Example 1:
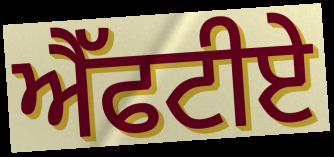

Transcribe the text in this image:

ਐੱਫਟੀਏ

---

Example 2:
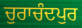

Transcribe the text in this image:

ਚੁਰਾਚੰਦਪੁਰ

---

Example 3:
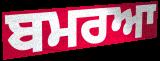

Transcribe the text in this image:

ਬਮਰਆ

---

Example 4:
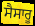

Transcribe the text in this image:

ਸੈਸਾਰੂ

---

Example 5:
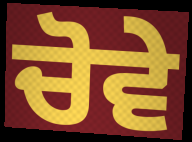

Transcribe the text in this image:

ਚੋਵੇ